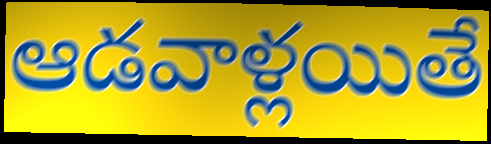
ఆడవాళ్లయితే